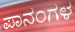
ಪಾನಂಗಳ